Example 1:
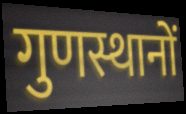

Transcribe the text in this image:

गुणस्थानों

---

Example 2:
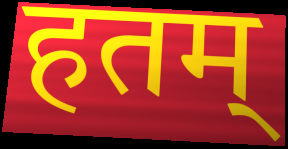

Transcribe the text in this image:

हतम्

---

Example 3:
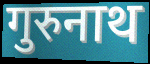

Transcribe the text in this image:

गुरुनाथ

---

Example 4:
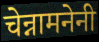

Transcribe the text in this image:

चेन्नामनेनी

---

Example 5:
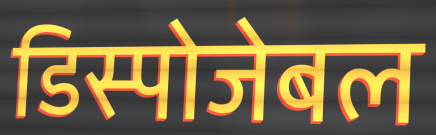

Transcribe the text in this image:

डिस्पोजेबल